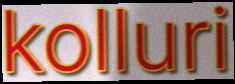
kolluri